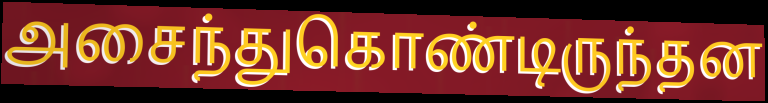
அசைந்துகொண்டிருந்தன